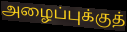
அழைப்புக்குத்